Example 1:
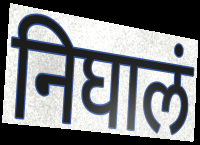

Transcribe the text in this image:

निघालं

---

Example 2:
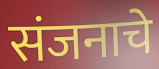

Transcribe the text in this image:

संजनाचे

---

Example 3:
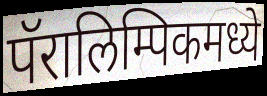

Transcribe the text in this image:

पॅरालिम्पिकमध्ये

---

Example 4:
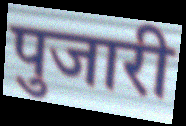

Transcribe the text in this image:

पुजारी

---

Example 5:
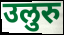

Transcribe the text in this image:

उलुरु